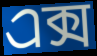
এক্স